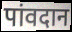
पांवदान